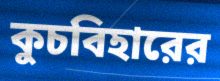
কুচবিহারের